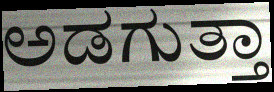
ಅಡಗುತ್ತಾ